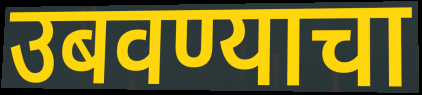
उबवण्याचा